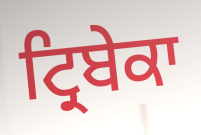
ਟ੍ਰਿਬੇਕਾ